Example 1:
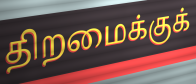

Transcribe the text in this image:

திறமைக்குக்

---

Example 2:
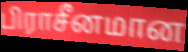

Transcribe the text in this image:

பிராசீனமான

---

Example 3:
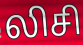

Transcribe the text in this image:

லிசி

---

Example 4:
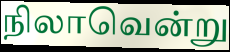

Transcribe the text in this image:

நிலாவென்று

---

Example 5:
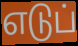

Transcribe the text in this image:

எடுப்